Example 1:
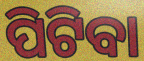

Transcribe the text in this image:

ପିଟିବା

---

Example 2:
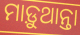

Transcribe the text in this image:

ମାଡ଼ୁଥାନ୍ତା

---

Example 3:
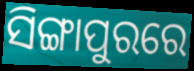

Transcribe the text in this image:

ସିଙ୍ଗାପୁରରେ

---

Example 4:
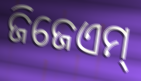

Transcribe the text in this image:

ଜିଜେଏମ୍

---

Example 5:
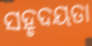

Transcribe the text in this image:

ସହୃଦୟତା